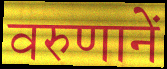
वरुणानें